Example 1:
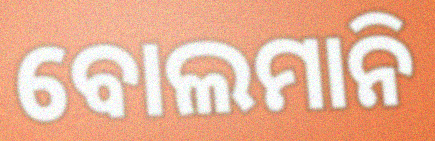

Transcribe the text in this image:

ବୋଲମାନି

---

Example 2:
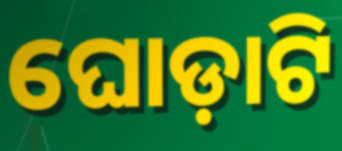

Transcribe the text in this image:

ଘୋଡ଼ାଟି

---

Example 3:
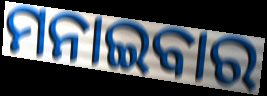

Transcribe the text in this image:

ମନାଇବାର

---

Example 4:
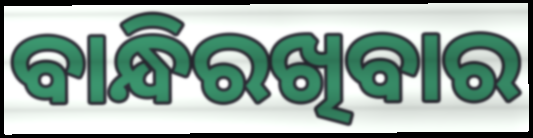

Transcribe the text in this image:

ବାନ୍ଧିରଖିବାର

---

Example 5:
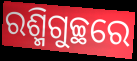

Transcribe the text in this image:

ରଶ୍ମିଗୁଚ୍ଛରେ